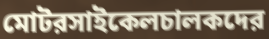
মোটরসাইকেলচালকদের